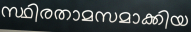
സ്ഥിരതാമസമാക്കിയ